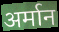
अर्मान